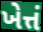
ખેત્તં